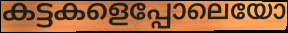
കട്ടകളെപ്പോലെയോ